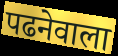
पढनेवाला